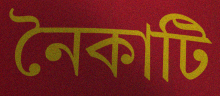
নৈকাটি